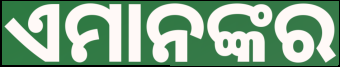
ଏମାନଙ୍କର